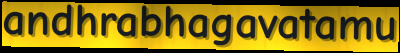
andhrabhagavatamu